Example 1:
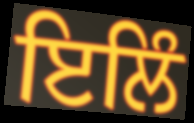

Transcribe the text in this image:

ਇਲਿੰ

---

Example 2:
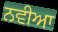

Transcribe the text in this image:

ਨਵੀਆ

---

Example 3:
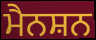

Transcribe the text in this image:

ਮੈਨਸ਼ਨ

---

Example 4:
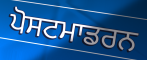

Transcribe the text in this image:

ਪੋਸਟਮਾਡਰਨ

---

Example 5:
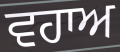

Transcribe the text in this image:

ਵਹਾਅ